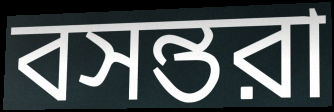
বসন্তরা